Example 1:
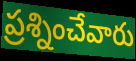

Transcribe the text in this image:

ప్రశ్నించేవారు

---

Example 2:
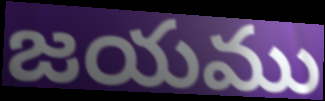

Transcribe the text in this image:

జయము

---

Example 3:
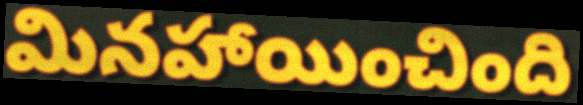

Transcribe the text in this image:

మినహాయించింది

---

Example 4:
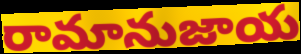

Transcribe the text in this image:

రామానుజాయ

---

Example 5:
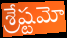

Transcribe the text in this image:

శ్రేష్టమో